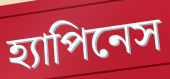
হ্যাপিনেস